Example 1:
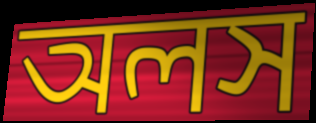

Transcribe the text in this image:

অলস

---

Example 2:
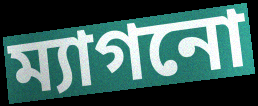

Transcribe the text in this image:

ম্যাগনো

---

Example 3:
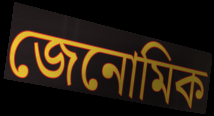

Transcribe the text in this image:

জেনোমিক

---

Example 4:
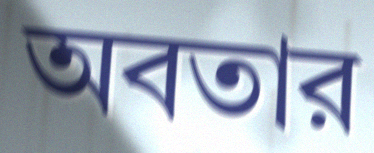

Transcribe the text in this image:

অবতার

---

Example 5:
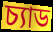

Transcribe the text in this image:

চ্যাড